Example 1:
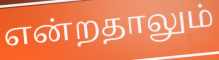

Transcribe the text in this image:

என்றதாலும்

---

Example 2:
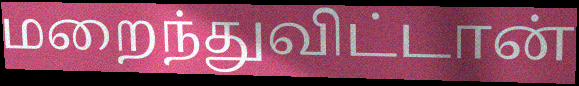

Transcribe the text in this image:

மறைந்துவிட்டான்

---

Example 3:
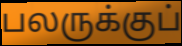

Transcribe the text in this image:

பலருக்குப்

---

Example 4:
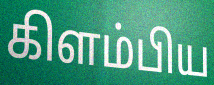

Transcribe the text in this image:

கிளம்பிய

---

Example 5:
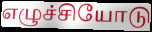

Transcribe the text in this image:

எழுச்சியோடு